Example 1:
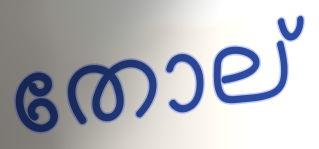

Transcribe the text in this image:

തോല്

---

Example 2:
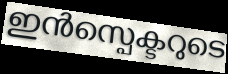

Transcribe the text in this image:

ഇൻസ്പെക്ടറുടെ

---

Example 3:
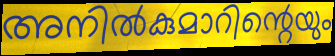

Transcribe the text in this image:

അനിൽകുമാറിന്റെയും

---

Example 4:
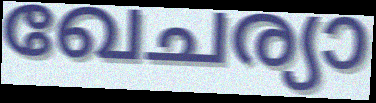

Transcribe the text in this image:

ഖേചര്യാ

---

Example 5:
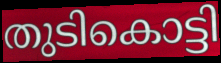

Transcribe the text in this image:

തുടികൊട്ടി